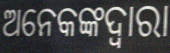
ଅନେକଙ୍କଦ୍ୱାରା